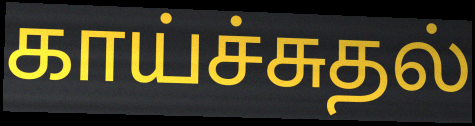
காய்ச்சுதல்